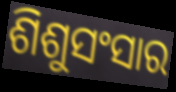
ଶିଶୁସଂସାର